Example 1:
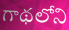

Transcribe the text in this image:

గాథలోని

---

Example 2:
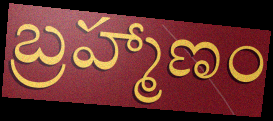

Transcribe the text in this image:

బ్రహ్మాణం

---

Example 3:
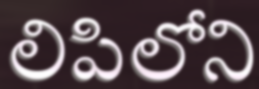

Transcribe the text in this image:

లిపిలోని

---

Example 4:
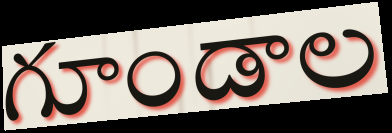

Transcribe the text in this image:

గూండాల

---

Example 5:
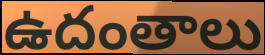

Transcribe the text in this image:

ఉదంతాలు